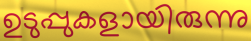
ഉടുപ്പുകളായിരുന്നു